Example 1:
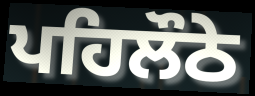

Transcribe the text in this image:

ਪਹਿਲੌਠੇ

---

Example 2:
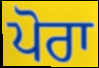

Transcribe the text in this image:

ਪੋਰਾ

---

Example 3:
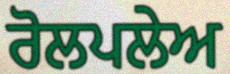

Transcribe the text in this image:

ਰੋਲਪਲੇਅ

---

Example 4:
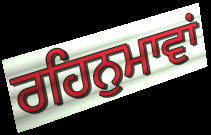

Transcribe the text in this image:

ਰਹਿਨੁਮਾਵਾਂ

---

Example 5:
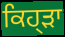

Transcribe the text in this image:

ਕਿਹ੍ੜਾ